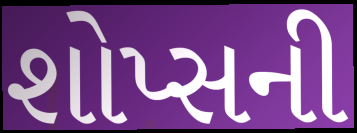
શોપ્સની